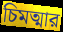
চিমত্মার